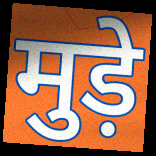
मुड़े